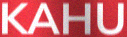
KAHU